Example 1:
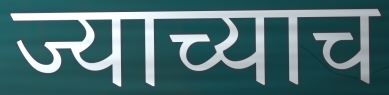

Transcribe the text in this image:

ज्याच्याच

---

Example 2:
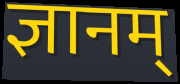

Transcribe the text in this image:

ज्ञानम्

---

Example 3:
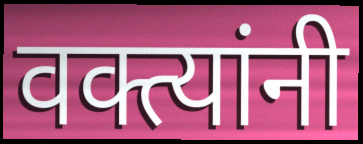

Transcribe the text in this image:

वक्त्यांनी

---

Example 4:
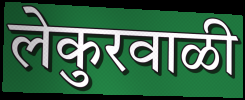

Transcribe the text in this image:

लेकुरवाळी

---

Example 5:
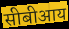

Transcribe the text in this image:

सीबीआय